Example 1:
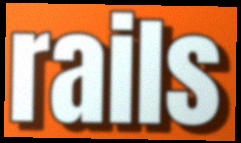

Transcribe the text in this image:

rails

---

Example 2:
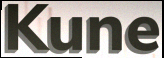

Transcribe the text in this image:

Kune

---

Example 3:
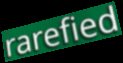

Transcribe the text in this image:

rarefied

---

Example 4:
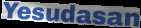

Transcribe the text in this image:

Yesudasan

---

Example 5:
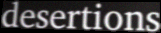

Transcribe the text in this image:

desertions